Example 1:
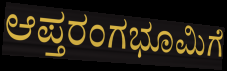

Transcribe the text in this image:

ಆಪ್ತರಂಗಭೂಮಿಗೆ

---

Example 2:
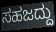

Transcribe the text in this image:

ಸಹಜದ್ದು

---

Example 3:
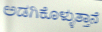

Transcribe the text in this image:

ಅಡಗಿಕೊಳ್ಳುತ್ತಾನೆ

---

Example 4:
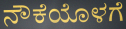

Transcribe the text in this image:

ನೌಕೆಯೊಳಗೆ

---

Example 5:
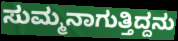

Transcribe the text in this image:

ಸುಮ್ಮನಾಗುತ್ತಿದ್ದನು